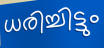
ധരിച്ചിട്ടും